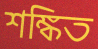
শঙ্কিত